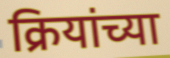
क्रियांच्या